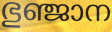
ഭുഞ്ജാന